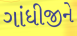
ગાંધીજીને